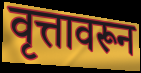
वृत्तावरून